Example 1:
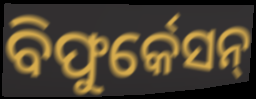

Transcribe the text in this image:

ବିଫୁର୍କେସନ୍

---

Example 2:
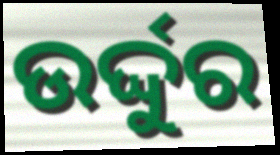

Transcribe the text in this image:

ଉର୍ଦ୍ଦୁର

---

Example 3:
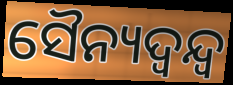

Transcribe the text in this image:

ସୈନ୍ୟଦ୍ୱନ୍ଦ୍ୱ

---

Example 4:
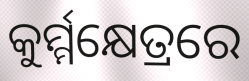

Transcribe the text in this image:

କୁର୍ମ୍ମକ୍ଷେତ୍ରରେ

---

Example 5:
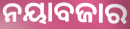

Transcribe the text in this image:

ନୟାବଜାର